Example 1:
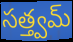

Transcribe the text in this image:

సత్త్వమ్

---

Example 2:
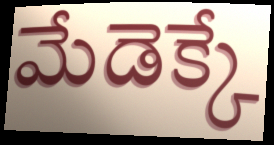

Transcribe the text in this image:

మేడెక్కే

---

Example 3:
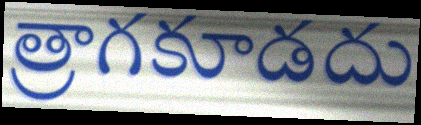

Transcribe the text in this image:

త్రాగకూడదు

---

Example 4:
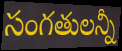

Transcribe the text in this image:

సంగతులన్నీ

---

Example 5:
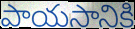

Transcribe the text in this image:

పాయసానికి